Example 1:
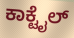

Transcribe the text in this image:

ಕಾಕ್ಟೈಲ್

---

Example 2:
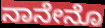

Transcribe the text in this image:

ನಾನೇನೊ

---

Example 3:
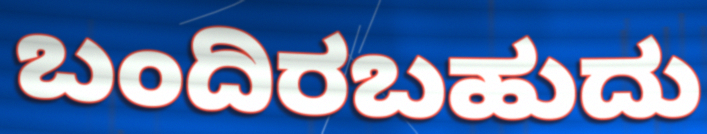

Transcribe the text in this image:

ಬಂದಿರಬಹುದು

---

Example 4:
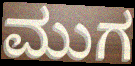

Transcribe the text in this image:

ಮುಗ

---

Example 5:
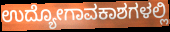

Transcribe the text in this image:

ಉದ್ಯೋಗಾವಕಾಶಗಳಲ್ಲಿ